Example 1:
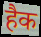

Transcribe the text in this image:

हैक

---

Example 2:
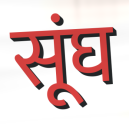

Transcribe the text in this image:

सूंघ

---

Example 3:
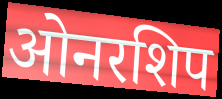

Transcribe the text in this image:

ओनरशिप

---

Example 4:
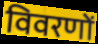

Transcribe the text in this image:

विवरणों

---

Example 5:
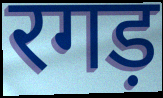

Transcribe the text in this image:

रगड़